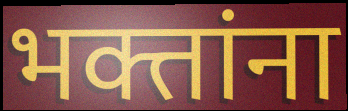
भक्तांना